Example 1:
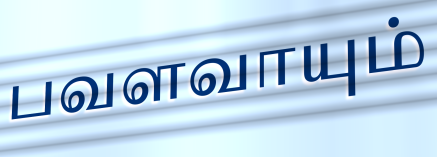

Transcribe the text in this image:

பவளவாயும்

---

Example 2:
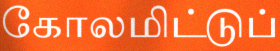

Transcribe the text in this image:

கோலமிட்டுப்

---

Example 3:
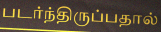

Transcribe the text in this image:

படர்ந்திருப்பதால்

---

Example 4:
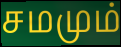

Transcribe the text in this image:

சமமும்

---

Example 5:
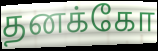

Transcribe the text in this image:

தனக்கோ